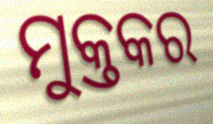
ମୁକ୍ତକର